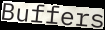
Buffers